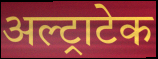
अल्‍ट्राटेक